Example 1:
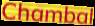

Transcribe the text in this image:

Chambal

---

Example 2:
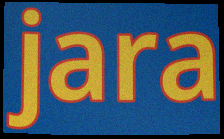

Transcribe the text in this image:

jara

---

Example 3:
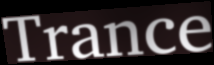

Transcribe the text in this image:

Trance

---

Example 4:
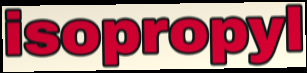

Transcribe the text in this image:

isopropyl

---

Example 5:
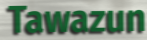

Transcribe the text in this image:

Tawazun